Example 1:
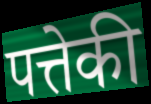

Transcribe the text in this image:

पत्तेकी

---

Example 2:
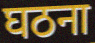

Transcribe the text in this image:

घठना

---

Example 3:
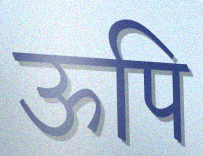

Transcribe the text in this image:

ऊपि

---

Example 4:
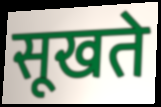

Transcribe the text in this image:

सूखते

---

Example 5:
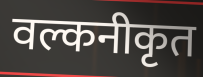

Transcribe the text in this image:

वल्कनीकृत